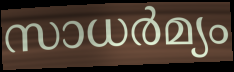
സാധർമ്യം